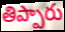
తిప్పారు